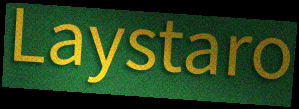
Laystaro